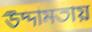
উদ্দামতায়